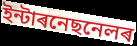
ইন্টাৰনেছনেলৰ